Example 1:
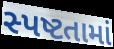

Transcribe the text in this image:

સ્પષ્ટતામાં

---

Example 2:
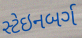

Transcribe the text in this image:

સ્ટેઇનબર્ગ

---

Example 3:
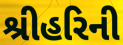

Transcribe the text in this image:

શ્રીહરિની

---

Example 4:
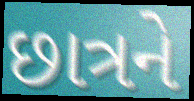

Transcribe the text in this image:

છાત્રને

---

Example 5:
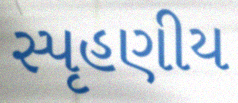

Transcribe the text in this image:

સ્પૃહણીય